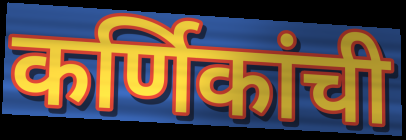
कर्णिकांची